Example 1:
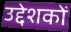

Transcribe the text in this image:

उद्देशकों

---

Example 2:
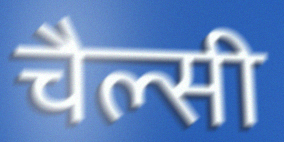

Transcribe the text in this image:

चैल्सी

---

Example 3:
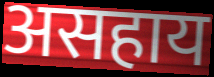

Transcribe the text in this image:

असहाय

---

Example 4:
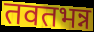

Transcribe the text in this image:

तवतभन्न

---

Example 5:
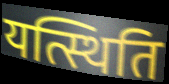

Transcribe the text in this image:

यत्स्थिति